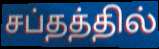
சப்தத்தில்